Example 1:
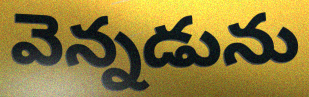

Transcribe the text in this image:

వెన్నడును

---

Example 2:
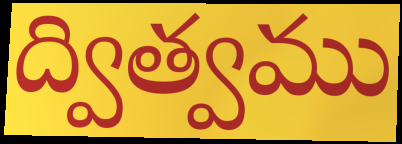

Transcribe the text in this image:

ద్విత్వము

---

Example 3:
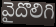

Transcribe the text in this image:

వైదొలిగి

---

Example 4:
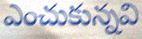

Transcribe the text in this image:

ఎంచుకున్నవి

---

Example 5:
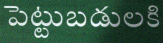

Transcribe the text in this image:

పెట్టుబడులకి